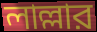
লাল্লার